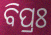
ବିପ୍ରଃ